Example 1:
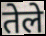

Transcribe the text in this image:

तेले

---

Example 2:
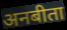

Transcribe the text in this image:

अनबीता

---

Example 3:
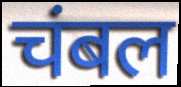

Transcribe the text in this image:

चंबल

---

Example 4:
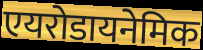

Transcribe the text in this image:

एयरोडायनेमिक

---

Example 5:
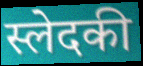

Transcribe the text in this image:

स्लेदकी